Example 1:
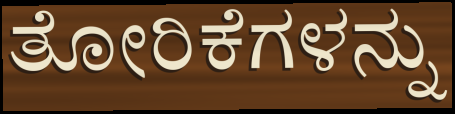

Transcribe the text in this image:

ತೋರಿಕೆಗಳನ್ನು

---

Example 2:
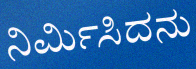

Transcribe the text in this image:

ನಿರ್ಮಿಸಿದನು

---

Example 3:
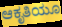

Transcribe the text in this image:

ಆಕೃತಿಯೂ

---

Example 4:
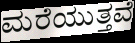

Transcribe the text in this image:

ಮರೆಯುತ್ತವೆ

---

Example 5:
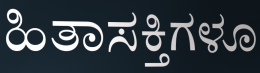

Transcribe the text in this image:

ಹಿತಾಸಕ್ತಿಗಳೂ